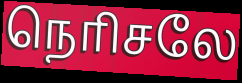
நெரிசலே